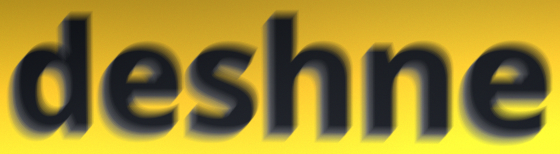
deshne